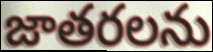
జాతరలను